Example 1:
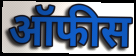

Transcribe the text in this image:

ऑफीस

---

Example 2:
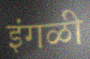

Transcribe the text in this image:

इंगळी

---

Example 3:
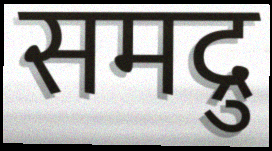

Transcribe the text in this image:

समद्रु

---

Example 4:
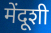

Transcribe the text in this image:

मेंदूशी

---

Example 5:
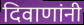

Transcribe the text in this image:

दिवाणांनी